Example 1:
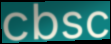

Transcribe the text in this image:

cbsc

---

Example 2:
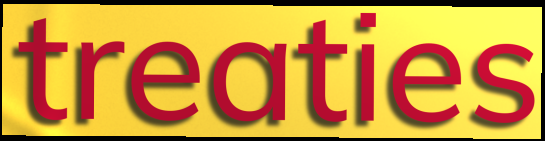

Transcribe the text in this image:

treaties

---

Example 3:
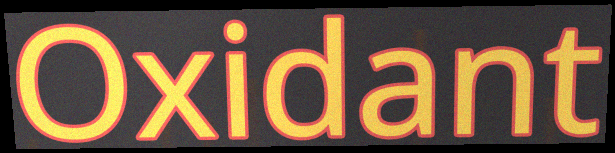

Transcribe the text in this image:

Oxidant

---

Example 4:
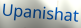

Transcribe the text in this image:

Upanishat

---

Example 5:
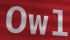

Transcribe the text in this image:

Owl